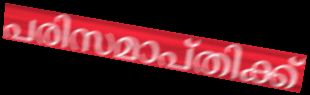
പരിസമാപ്തിക്ക്